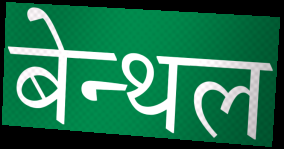
बेन्थल